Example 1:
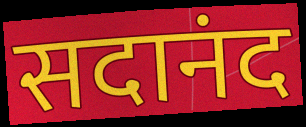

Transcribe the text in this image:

सदानंद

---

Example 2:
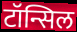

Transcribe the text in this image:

टॉन्सिल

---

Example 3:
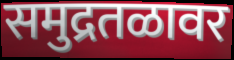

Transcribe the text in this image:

समुद्रतळावर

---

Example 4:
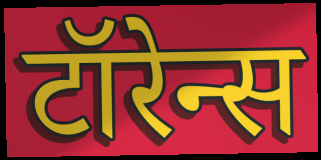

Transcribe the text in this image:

टॉरेन्स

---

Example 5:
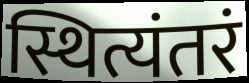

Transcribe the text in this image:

स्थित्यंतरं